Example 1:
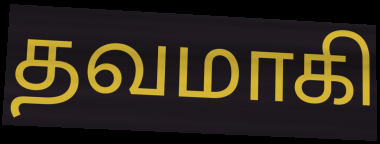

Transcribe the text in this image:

தவமாகி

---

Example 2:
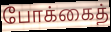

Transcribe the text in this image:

போக்கைத்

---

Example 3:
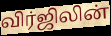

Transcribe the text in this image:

விர்ஜிலின்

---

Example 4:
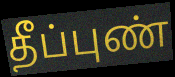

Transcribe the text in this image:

தீப்புண்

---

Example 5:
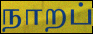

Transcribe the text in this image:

நாறப்